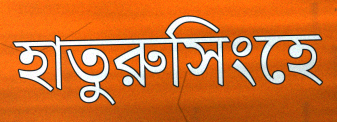
হাতুরুসিংহে